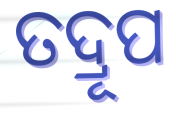
ତଦ୍ରୂପ